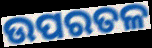
ଉପରତଳ